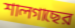
শালগাছের